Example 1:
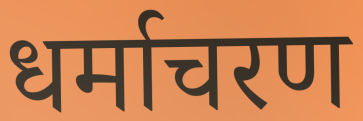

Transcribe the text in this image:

धर्माचरण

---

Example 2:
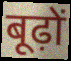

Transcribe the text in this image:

बूढ़ों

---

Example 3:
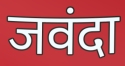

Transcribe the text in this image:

जवंदा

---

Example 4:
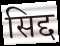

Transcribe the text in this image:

सिद्द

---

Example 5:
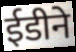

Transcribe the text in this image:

ईडीने